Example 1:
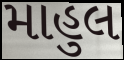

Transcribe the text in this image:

માહુલ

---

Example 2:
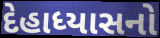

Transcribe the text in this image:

દેહાધ્યાસનો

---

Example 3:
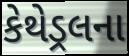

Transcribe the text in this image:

કેથેડ્રલના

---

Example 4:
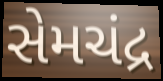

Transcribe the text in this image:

સેમચંદ્ર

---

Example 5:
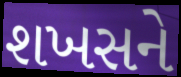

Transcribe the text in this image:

શખસને